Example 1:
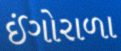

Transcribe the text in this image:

ઈંગોરાળા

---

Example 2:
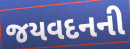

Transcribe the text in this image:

જયવદનની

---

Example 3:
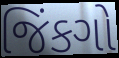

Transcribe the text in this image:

જિંકગો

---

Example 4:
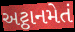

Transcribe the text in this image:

અટ્ઠાનમેતં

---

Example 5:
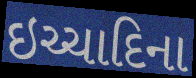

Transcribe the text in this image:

ઇચ્ચાદિના